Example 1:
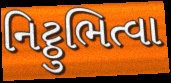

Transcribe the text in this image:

નિટ્ઠુભિત્વા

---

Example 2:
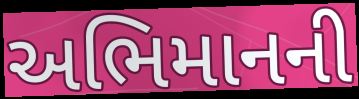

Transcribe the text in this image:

અભિમાનની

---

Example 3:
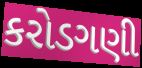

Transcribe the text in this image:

કરોડગણી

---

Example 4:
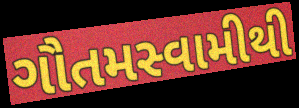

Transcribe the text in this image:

ગૌતમસ્વામીથી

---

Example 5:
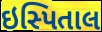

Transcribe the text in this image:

ઇસ્પિતાલ